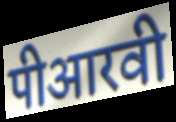
पीआरवी